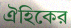
ঐহিকের